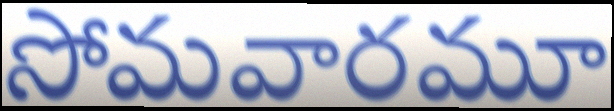
సోమవారమూ